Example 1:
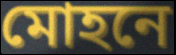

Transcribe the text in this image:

মোহনে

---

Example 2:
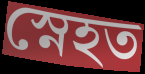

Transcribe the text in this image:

স্নেহত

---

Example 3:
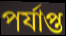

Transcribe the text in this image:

পৰ্যাপ্ত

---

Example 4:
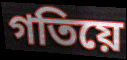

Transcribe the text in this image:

গতিয়ে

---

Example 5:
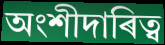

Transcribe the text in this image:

অংশীদাৰিত্ব